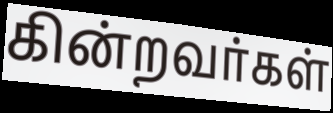
கின்றவர்கள்